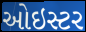
ઓઇસ્ટર